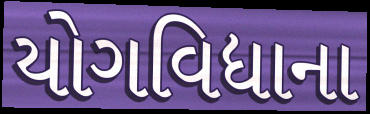
યોગવિદ્યાના